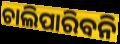
ଚାଲିପାରିବନି